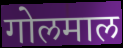
गोलमाल